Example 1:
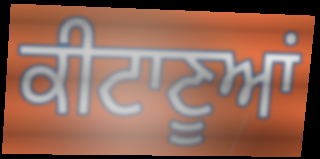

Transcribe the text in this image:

ਕੀਟਾਣੂਆਂ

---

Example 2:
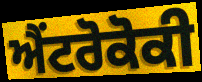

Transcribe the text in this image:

ਐਂਟਰੋਕੋਕੀ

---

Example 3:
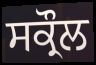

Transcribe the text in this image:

ਸਕ੍ਰੌਲ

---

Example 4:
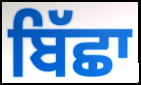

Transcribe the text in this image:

ਬਿੱਛਾ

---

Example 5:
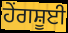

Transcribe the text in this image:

ਹੇਂਗਸ਼ੂਈ